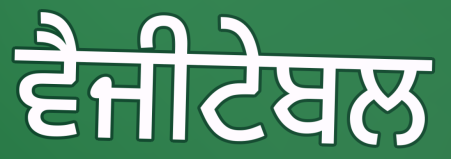
ਵੈਜੀਟੇਬਲ